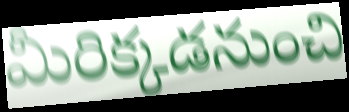
మీరిక్కడనుంచి